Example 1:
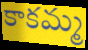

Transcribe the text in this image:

కాకమ్మ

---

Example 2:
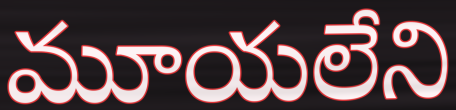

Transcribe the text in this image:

మూయలేని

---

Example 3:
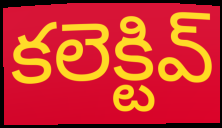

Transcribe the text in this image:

కలెక్టివ్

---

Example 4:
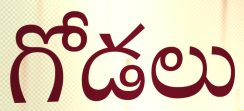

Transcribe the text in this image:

గోడలు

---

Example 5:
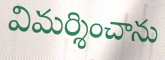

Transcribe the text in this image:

విమర్శించాను